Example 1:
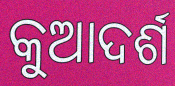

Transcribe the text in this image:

କୁଆଦର୍ଶ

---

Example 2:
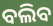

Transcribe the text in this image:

ବଲିବ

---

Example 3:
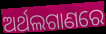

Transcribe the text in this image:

ଅର୍ଥଲଗାଣରେ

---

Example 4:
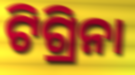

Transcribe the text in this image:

ଟିଗ୍ରିନା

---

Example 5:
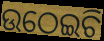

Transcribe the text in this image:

ଉଠେଇଚି